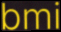
bmi